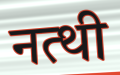
नत्‍थी